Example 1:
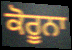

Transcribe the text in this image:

ਕੋਰੂਨਾ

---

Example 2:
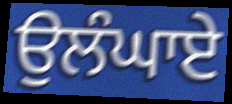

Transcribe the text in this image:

ਉਲੰਘਾਏ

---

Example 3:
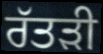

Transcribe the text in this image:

ਰੱਤੜੀ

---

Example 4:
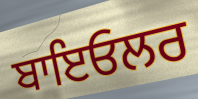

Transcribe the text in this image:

ਬਾਇਓਲਰ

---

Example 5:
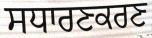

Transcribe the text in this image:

ਸਧਾਰਣਕਰਣ